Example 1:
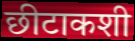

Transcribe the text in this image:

छीटाकशी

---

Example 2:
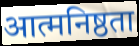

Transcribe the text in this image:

आत्मनिष्ठता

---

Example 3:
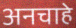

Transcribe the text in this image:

अनचाहे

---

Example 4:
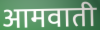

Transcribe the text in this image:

आमवाती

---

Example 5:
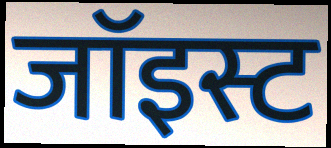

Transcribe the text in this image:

जॉइस्ट